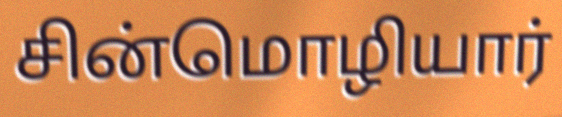
சின்மொழியார்